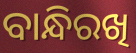
ବାନ୍ଧିରଖି